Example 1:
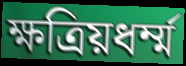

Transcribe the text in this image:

ক্ষত্রিয়ধর্ম্ম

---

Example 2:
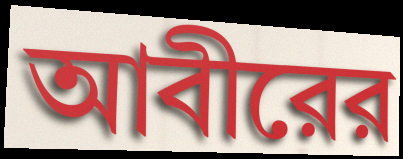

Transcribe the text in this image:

আবীরের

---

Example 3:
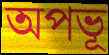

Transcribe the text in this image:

অপভূ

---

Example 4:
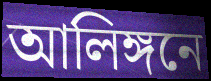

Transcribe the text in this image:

আলিঙ্গনে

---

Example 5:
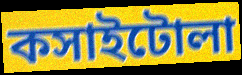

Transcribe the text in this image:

কসাইটোলা